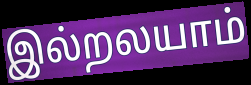
இல்றலயாம்